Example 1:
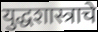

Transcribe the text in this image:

युद्धशास्त्राचे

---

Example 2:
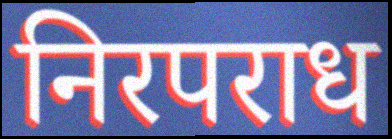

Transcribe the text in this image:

निरपराध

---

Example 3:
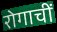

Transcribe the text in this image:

रोगाचीं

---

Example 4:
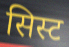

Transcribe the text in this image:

सिस्ट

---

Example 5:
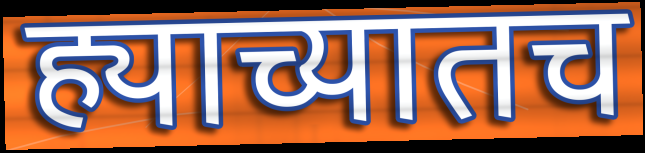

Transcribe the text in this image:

ह्याच्यातच